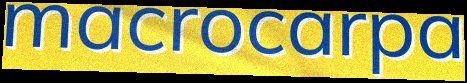
macrocarpa